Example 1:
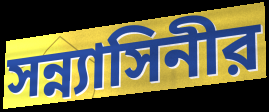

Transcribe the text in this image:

সন্ন্যাসিনীর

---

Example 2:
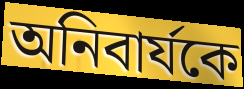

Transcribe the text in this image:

অনিবার্যকে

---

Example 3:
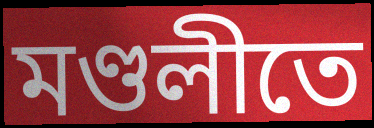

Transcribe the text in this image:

মণ্ডলীতে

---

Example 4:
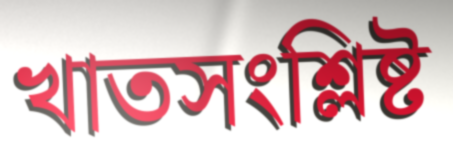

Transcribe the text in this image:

খাতসংশ্লিষ্ট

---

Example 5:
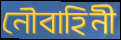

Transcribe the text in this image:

নৌবাহিনী